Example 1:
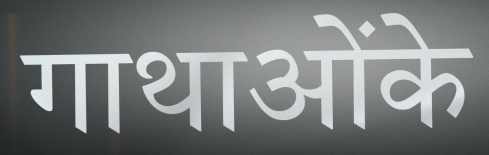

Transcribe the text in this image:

गाथाओंके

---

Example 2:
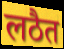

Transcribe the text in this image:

लठैत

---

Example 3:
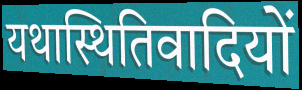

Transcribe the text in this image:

यथास्थितिवादियों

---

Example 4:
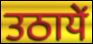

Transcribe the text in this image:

उठायें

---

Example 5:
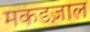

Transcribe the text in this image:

मकडज़ाल